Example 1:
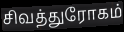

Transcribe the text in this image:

சிவத்துரோகம்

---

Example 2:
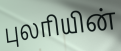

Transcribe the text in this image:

புலரியின்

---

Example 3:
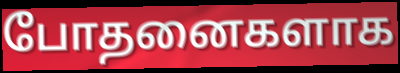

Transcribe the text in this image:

போதனைகளாக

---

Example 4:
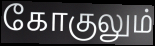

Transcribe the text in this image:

கோகுலும்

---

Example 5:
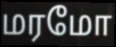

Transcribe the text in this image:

மரமோ